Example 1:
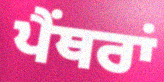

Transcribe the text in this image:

ਪੈਂਥਰਾਂ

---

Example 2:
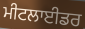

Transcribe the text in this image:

ਮੀਟਲਾਈਡਰ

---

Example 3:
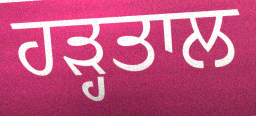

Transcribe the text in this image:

ਹੜ੍ਹਤਾਲ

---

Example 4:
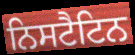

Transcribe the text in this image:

ਨਿਸਟੈਟਿਨ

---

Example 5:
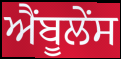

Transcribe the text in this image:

ਐਂਬੂਲੇਂਸ